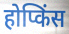
होप्किंस